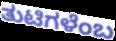
ತುಟಿಗಳೆಂಬ